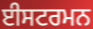
ਈਸਟਰਮਨ